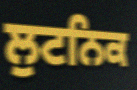
ਲੁਟਨਿਕ